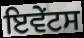
ਇਵੇੰਟਸ